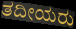
ತದೀಯರು